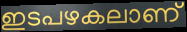
ഇടപഴകലാണ്